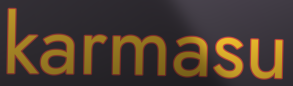
karmasu